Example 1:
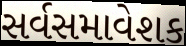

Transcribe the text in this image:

સર્વસમાવેશક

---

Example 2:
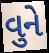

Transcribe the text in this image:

વુને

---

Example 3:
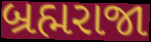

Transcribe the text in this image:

બ્રહ્મરાજા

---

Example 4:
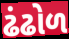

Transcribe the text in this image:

ઢંઢોળ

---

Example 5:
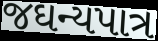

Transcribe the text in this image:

જઘન્યપાત્ર